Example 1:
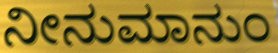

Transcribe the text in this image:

ನೀನುಮಾನುಂ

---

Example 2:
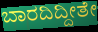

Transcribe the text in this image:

ಬಾರದಿದ್ದೀತೇ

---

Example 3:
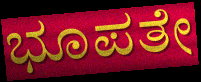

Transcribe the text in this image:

ಭೂಪತೇ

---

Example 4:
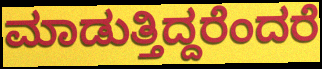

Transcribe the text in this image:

ಮಾಡುತ್ತಿದ್ದರೆಂದರೆ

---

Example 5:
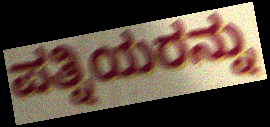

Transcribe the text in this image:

ಪತ್ನಿಯರನ್ನು